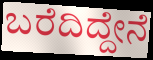
ಬರೆದಿದ್ದೇನೆ